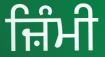
ਜ਼ਿੰਮੀ